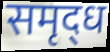
समृद्ध